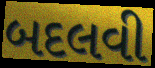
બદલવી